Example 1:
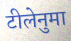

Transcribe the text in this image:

टीलेनुमा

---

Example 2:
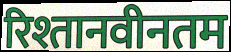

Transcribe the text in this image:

रिश्तानवीनतम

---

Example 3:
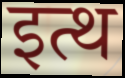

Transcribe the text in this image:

इत्थ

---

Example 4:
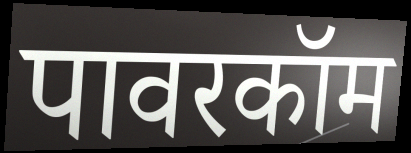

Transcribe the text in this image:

पावरकॉम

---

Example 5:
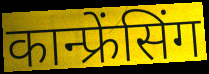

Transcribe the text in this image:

कान्फ्रेंसिंग